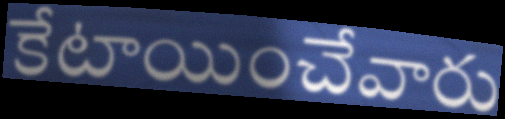
కేటాయించేవారు